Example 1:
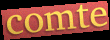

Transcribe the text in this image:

comte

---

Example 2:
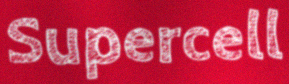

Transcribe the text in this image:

Supercell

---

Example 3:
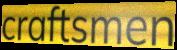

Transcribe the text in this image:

craftsmen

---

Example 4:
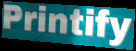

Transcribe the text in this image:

Printify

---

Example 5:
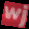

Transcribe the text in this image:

wj